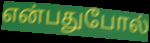
என்பதுபோல்